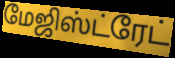
மேஜிஸ்ட்ரேட்